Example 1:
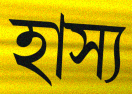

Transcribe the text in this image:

হাস্য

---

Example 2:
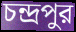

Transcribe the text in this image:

চন্দ্রপুর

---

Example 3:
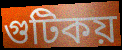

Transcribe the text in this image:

গুটিকয়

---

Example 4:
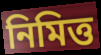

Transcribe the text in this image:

নিমিত্ত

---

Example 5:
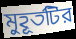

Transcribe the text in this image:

মুহূর্তটির